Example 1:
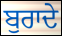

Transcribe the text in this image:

ਬੁਰਾਦੇ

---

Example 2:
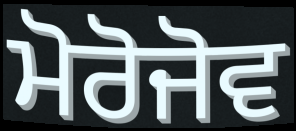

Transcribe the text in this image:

ਮੋਰੋਜੋਵ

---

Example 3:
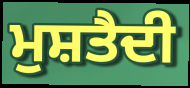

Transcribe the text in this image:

ਮੁਸ਼ਤੈਦੀ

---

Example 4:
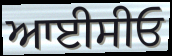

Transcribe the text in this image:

ਆਈਸੀਓ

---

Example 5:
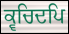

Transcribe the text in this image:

ਕ੍ਵਚਿਦਪਿ